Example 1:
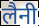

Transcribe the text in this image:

लैनी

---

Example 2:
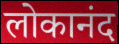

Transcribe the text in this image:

लोकानंद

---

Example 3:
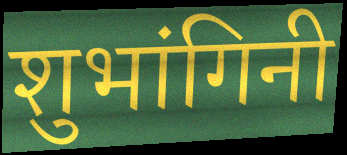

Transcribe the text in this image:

शुभांगिनी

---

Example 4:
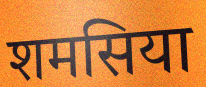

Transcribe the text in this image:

शमसिया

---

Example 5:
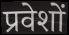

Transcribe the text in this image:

प्रवेशों